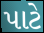
પાટે